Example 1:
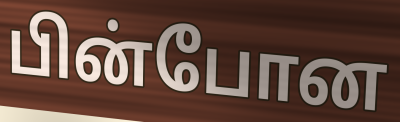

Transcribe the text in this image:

பின்போன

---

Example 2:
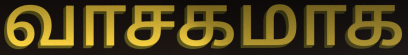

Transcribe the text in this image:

வாசகமாக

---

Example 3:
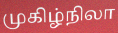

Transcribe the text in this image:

முகிழ்நிலா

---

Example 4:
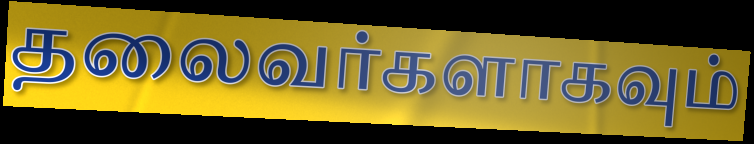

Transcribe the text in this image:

தலைவர்களாகவும்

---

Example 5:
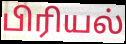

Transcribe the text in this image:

பிரியல்